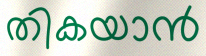
തികയാൻ